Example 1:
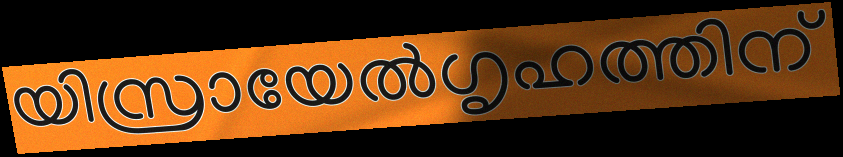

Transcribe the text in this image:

യിസ്രായേൽഗൃഹത്തിന്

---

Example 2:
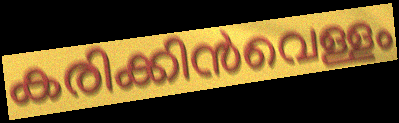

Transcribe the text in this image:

കരിക്കിൻവെള്ളം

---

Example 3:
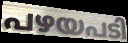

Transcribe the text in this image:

പഴയപടി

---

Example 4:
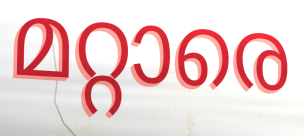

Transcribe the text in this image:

മറ്റാരെ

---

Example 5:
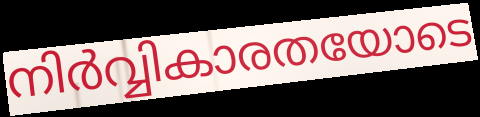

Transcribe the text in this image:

നിർവ്വികാരതയോടെ